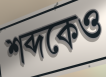
শব্দকেও